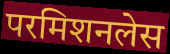
परमिशनलेस